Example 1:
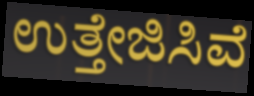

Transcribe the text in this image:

ಉತ್ತೇಜಿಸಿವೆ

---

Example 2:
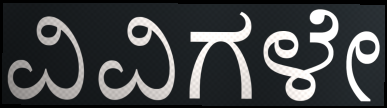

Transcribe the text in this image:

ವಿವಿಗಳೇ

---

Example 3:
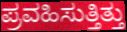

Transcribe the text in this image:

ಪ್ರವಹಿಸುತ್ತಿತ್ತು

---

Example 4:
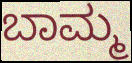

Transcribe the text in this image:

ಬಾಮ್ಮ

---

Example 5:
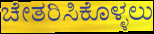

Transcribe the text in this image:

ಚೇತರಿಸಿಕೊಳ್ಳಲು